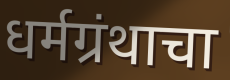
धर्मग्रंथाचा